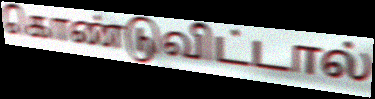
கொண்டுவிட்டால்